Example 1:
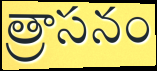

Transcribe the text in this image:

త్రాసనం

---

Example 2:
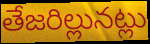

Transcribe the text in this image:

తేజరిల్లునట్లు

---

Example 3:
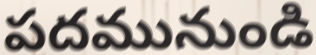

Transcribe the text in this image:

పదమునుండి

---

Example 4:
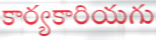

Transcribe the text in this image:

కార్యకారియగు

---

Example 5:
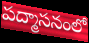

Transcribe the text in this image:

పద్మాసనంలో